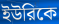
ইউরিকে